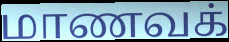
மாணவக்